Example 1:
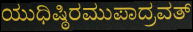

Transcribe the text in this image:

ಯುಧಿಷ್ಠಿರಮುಪಾದ್ರವತ್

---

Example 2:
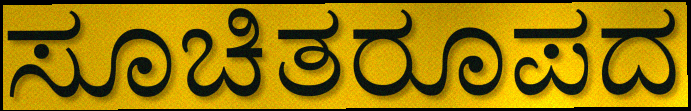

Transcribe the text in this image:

ಸೂಚಿತರೂಪದ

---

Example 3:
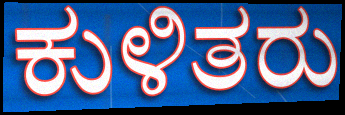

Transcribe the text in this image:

ಕುಳಿತರು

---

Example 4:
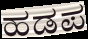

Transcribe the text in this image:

ಹಡಪ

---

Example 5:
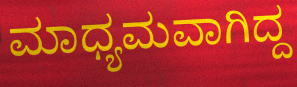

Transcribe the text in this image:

ಮಾಧ್ಯಮವಾಗಿದ್ದ